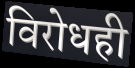
विरोधही